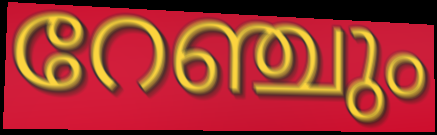
റേഞ്ചും